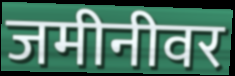
जमीनीवर